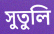
সুতুলি